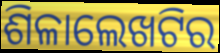
ଶିଳାଲେଖଟିର